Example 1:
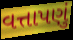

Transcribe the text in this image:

વત્તાપણું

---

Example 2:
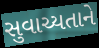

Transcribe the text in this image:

સુવાચ્યતાને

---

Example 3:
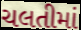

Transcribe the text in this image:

ચલતીમાં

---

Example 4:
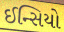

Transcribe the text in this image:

ઈન્સિયો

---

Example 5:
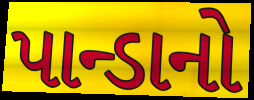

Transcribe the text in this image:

પાન્ડાનો